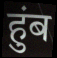
हुंब